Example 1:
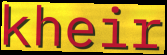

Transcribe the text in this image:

kheir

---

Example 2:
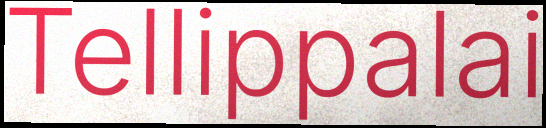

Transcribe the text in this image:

Tellippalai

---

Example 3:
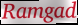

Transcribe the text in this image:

Ramgad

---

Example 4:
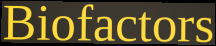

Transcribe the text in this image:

Biofactors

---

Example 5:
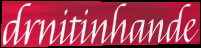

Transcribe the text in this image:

drnitinhande